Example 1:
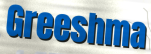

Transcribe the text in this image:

Greeshma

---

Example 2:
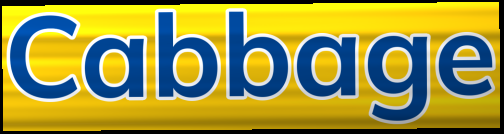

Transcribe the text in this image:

Cabbage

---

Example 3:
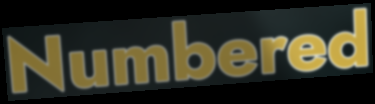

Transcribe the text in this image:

Numbered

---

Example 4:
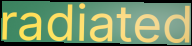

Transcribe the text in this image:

radiated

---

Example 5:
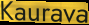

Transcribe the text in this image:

Kaurava